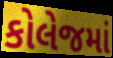
કોલેજમાં